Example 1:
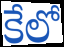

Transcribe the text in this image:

కేలో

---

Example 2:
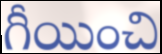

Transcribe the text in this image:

గీయించి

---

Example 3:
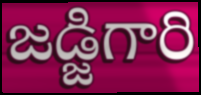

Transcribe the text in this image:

జడ్జిగారి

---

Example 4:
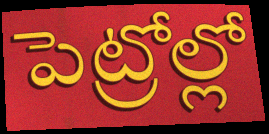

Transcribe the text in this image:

పెట్రోల్లో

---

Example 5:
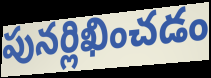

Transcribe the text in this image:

పునర్లిఖించడం